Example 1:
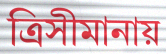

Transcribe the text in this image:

ত্রিসীমানায়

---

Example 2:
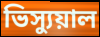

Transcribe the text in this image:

ভিস্যুয়াল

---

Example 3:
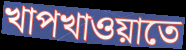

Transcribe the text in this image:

খাপখাওয়াতে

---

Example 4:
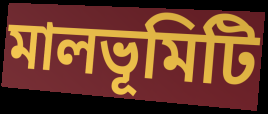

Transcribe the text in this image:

মালভূমিটি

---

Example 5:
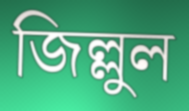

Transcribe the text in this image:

জিল্লুল